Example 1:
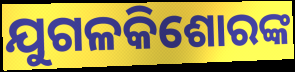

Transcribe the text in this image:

ଯୁଗଳକିଶୋରଙ୍କ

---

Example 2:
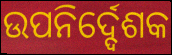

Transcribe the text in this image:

ଉପନିର୍ଦ୍ଦେଶକ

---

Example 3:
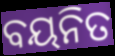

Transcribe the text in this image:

ବୟନିତ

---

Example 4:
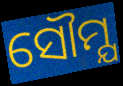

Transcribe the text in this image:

ସୌମ୍ଯ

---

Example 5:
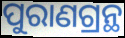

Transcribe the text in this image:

ପୁରାଣଗ୍ରନ୍ଥ